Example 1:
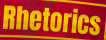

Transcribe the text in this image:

Rhetorics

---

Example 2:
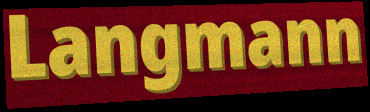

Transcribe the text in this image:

Langmann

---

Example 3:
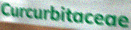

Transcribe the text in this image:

Curcurbitaceae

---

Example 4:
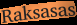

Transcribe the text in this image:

Raksasas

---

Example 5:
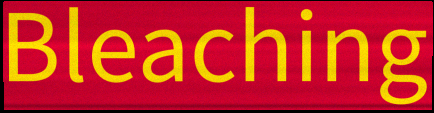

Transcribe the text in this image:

Bleaching